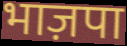
भाज़पा